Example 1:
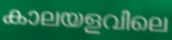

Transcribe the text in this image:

കാലയളവിലെ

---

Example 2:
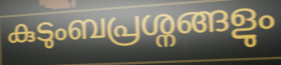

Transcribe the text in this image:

കുടുംബപ്രശ്നങ്ങളും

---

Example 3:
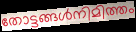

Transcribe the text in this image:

തോട്ടങ്ങൾനിമിത്തം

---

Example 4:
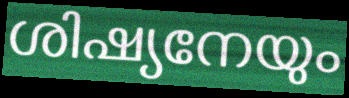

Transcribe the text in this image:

ശിഷ്യനേയും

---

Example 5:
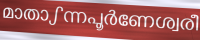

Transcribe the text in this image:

മാതാഽന്നപൂർണേശ്വരീ